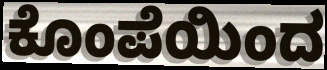
ಕೊಂಪೆಯಿಂದ